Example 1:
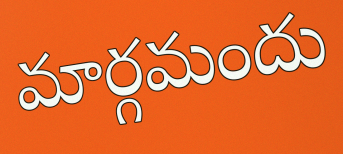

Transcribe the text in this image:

మార్గమందు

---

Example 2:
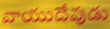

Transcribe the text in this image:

వాయుదేవుడు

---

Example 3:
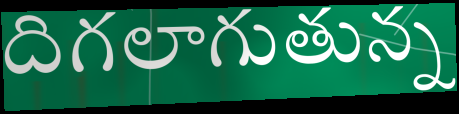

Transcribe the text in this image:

దిగలాగుతున్న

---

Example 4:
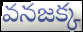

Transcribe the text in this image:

వనజక్క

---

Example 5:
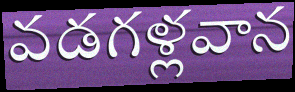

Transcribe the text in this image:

వడగళ్లవాన